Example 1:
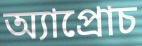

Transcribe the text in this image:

অ্যাপ্রোচ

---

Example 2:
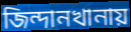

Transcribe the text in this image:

জিন্দানখানায়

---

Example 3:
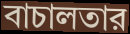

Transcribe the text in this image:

বাচালতার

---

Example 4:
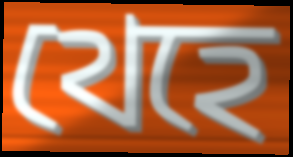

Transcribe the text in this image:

থেহে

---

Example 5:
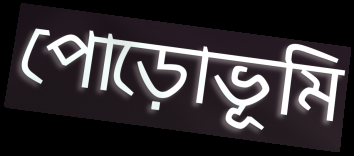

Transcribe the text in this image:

পোড়োভূমি